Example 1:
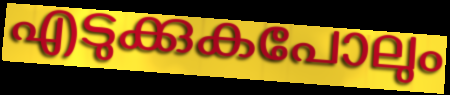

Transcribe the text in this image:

എടുക്കുകപോലും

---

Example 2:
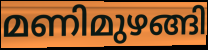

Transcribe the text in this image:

മണിമുഴങ്ങി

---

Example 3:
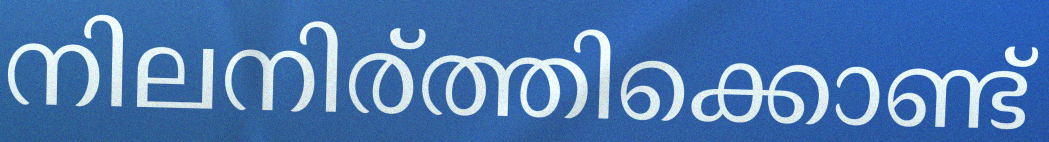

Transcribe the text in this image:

നിലനിര്ത്തിക്കൊണ്ട്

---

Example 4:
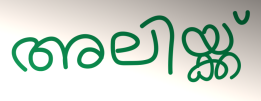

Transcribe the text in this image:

അലിയ്ക്ക്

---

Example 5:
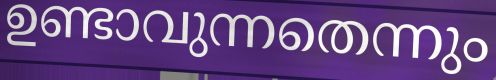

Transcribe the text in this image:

ഉണ്ടാവുന്നതെന്നും